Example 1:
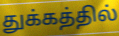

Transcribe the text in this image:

துக்கத்தில்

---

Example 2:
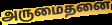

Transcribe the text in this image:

அருமைதனை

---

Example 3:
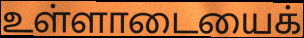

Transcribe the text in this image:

உள்ளாடையைக்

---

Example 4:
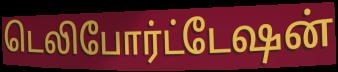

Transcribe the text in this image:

டெலிபோர்ட்டேஷன்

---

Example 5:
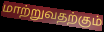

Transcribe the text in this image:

மாற்றுவதற்கும்